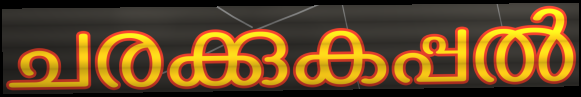
ചരക്കുകപ്പൽ